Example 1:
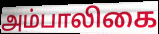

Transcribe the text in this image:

அம்பாலிகை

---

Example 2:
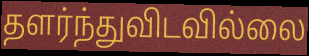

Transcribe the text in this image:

தளர்ந்துவிடவில்லை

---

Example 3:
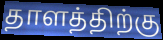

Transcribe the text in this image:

தாளத்திற்கு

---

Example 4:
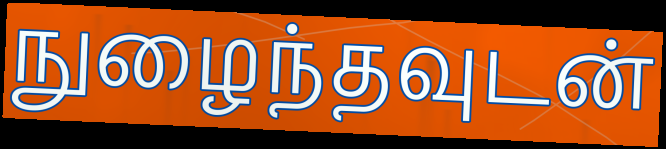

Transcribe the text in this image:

நுழைந்தவுடன்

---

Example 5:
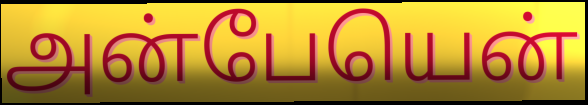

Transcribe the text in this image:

அன்பேயென்